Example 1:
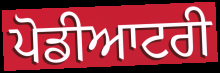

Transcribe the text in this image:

ਪੋਡੀਆਟਰੀ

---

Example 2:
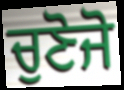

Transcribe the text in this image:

ਚੁਣੋਜੋ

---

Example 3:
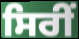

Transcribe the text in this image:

ਸਿਰੀਂ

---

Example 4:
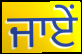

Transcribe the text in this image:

ਜਾਏਂ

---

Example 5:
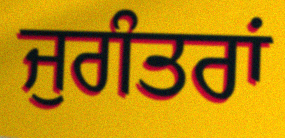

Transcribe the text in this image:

ਜੁਗੰਤਰਾਂ